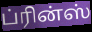
ப்ரின்ஸ்